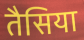
तैसिया